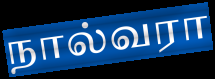
நால்வரா